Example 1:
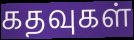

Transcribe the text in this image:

கதவுகள்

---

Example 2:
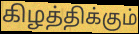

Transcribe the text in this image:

கிழத்திக்கும்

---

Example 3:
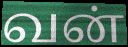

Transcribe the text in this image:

வன்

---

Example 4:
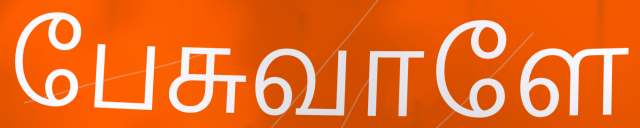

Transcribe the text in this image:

பேசுவாளே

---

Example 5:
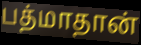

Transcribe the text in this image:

பத்மாதான்